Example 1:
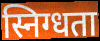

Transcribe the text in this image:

स्निग्धता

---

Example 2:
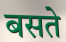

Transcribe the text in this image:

बसते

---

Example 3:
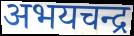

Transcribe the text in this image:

अभयचन्द्र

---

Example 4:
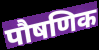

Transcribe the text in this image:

पौषणिक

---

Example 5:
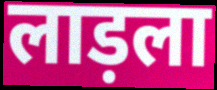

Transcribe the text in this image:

लाड़ला